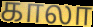
காலா